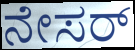
ನೇಸರ್